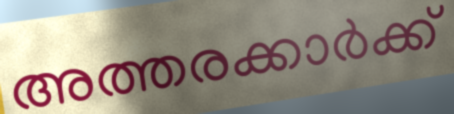
അത്തരക്കാർക്ക്